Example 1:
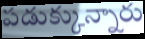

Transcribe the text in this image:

పడుక్కున్నారు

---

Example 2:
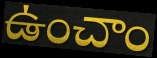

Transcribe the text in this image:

ఉంచాం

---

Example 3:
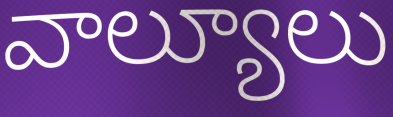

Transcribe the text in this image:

వాల్యూలు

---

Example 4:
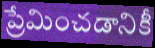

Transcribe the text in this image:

ప్రేమించడానికీ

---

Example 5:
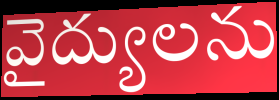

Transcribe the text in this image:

వైద్యులను